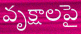
వృక్షాలపై